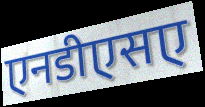
एनडीएसए